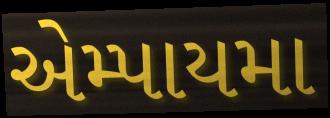
એમ્પાયમા